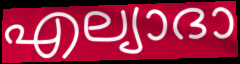
എല്യാദാ